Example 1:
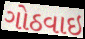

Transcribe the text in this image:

ગોઠવાઇ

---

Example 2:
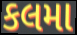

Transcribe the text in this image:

કલમા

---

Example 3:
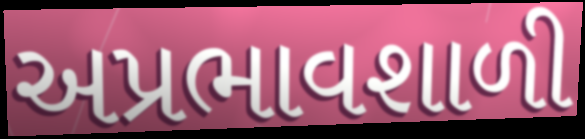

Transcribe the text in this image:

અપ્રભાવશાળી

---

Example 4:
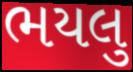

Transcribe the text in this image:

ભયલુ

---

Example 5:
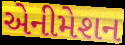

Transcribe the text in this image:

એનીમેશન